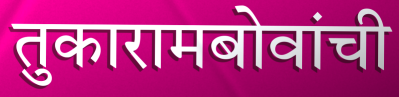
तुकारामबोवांची